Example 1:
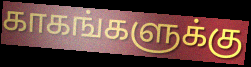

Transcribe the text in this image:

காகங்களுக்கு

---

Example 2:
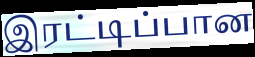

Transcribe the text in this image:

இரட்டிப்பான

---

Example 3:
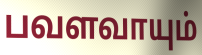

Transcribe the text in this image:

பவளவாயும்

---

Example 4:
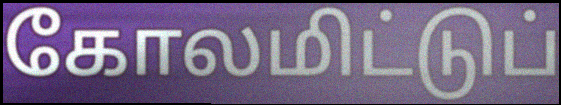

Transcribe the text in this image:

கோலமிட்டுப்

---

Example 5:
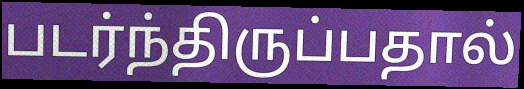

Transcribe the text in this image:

படர்ந்திருப்பதால்